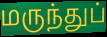
மருந்துப்